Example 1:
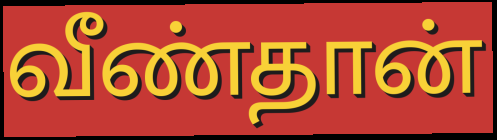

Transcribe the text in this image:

வீண்தான்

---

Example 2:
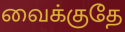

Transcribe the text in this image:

வைக்குதே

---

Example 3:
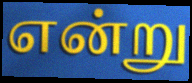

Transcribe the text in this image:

என்று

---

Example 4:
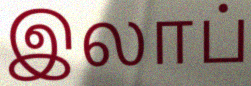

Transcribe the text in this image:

இலாப்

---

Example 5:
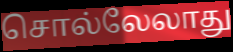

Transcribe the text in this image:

சொல்லேலாது